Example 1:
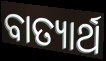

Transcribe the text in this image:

ବାତ୍ୟାର୍ଥ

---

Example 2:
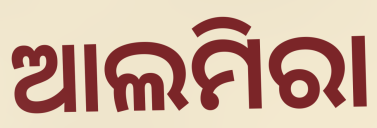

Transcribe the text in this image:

ଆଲମିରା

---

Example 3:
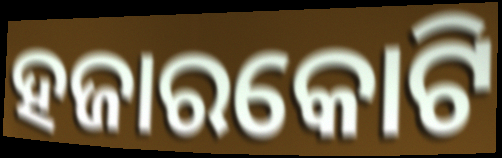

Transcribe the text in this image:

ହଜାରକୋଟି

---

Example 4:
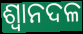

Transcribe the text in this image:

ଶ୍ୱାନଦଳ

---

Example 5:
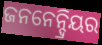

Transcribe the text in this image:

ଜନନେନ୍ଦ୍ରିୟର